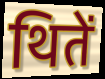
थितें